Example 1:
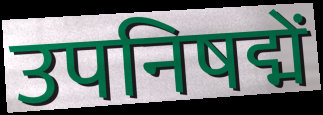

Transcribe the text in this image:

उपनिषद्में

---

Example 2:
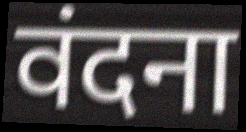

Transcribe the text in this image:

वंदना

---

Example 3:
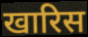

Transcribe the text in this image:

खारिस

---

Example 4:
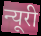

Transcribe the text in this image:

न्यूरी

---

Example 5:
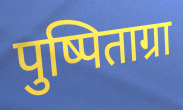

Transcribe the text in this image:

पुष्पिताग्रा